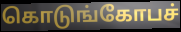
கொடுங்கோபச்